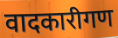
वादकारीगण